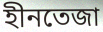
হীনতেজা